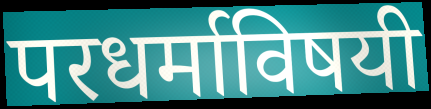
परधर्माविषयी